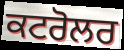
ਕਟਰੋਲਰ